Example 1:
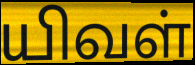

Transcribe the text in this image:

யிவள்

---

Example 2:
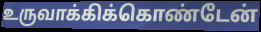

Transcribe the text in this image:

உருவாக்கிக்கொண்டேன்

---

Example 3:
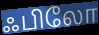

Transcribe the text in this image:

ஃபிலோ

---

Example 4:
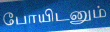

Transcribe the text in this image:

போயிடனும்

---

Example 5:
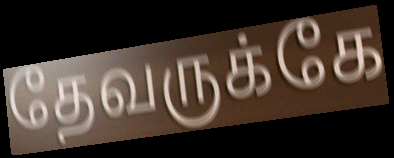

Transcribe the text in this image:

தேவருக்கே